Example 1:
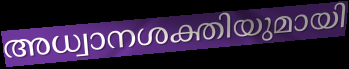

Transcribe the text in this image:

അധ്വാനശക്തിയുമായി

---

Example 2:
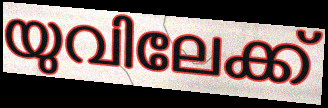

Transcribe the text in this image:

യുവിലേക്ക്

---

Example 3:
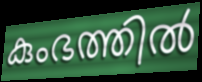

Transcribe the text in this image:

കുംഭത്തിൽ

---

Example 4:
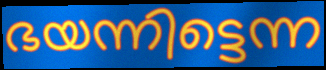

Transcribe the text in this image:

ഭയന്നിട്ടെന്ന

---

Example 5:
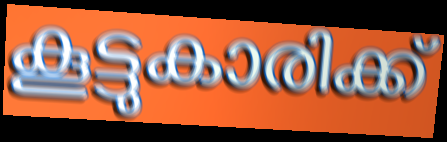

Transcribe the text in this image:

കൂട്ടുകാരിക്ക്